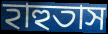
হাহুতাস